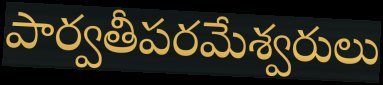
పార్వతీపరమేశ్వరులు